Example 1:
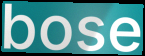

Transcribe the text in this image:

bose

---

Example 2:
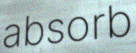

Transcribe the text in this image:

absorb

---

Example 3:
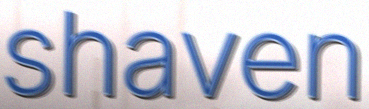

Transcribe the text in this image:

shaven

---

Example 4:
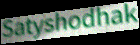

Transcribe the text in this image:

Satyshodhak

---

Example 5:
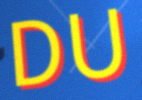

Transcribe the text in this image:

DU